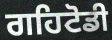
ਗਹਿਟੋਡੀ